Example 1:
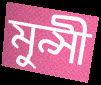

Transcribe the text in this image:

মুন্সী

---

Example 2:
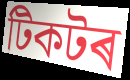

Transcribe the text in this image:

টিকটৰ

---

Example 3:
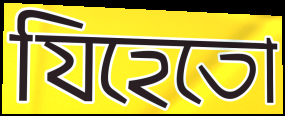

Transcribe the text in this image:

যিহেতো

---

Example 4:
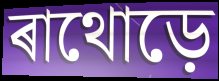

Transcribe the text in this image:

ৰাথোড়ে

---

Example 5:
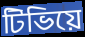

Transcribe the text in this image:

টিভিয়ে